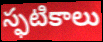
స్ఫటికాలు